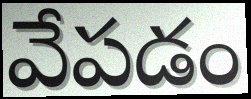
వేపడం